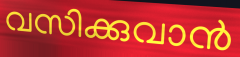
വസിക്കുവാൻ